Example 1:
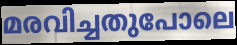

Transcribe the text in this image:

മരവിച്ചതുപോലെ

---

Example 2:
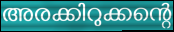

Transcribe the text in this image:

അരക്കിറുക്കന്റെ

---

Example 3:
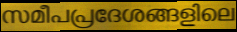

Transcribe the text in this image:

സമീപപ്രദേശങ്ങളിലെ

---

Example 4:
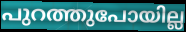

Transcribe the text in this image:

പുറത്തുപോയില്ല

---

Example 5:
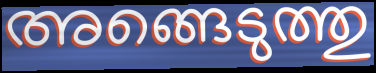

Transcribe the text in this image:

അങ്ങെടുത്തു